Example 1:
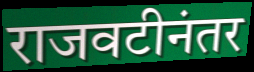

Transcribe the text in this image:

राजवटीनंतर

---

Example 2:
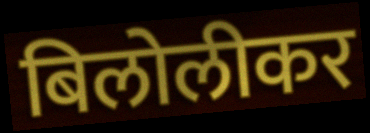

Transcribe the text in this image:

बिलोलीकर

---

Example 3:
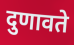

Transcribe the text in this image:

दुणावते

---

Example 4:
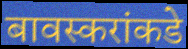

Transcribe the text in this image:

बावस्करांकडे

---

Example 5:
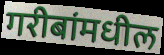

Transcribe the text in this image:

गरीबांमधील